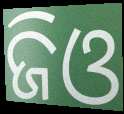
ଜିଓ